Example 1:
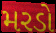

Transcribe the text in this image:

મરડો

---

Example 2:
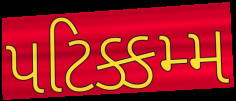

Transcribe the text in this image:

પટિક્કમ્મ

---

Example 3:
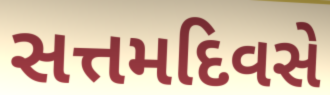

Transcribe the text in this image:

સત્તમદિવસે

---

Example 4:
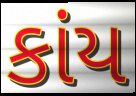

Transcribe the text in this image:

કાંય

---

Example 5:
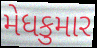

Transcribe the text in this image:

મેધકુમાર